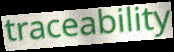
traceability